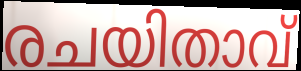
രചയിതാവ്